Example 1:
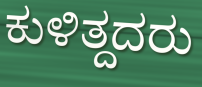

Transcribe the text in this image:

ಕುಳಿತ್ದದರು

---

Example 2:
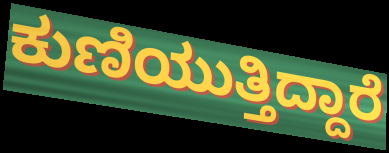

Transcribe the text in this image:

ಕುಣಿಯುತ್ತಿದ್ದಾರೆ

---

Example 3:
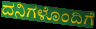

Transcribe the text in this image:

ದನಿಗಳೊಂದಿಗೆ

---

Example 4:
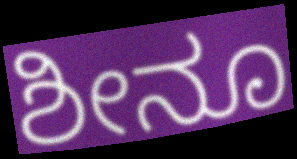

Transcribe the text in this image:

ಶೀನೂ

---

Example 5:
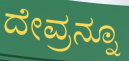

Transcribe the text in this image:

ದೇವ್ರನ್ನೂ